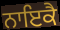
ਨਾਇਕੈ